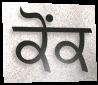
ਕੋਂਕ